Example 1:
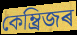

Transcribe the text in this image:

কেম্ব্ৰিজৰ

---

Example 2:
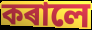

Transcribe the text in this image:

কৰালে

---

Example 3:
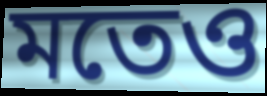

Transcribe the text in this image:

মতেও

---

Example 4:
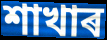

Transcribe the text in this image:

শাখাৰ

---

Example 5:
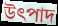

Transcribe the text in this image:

উৎপাদ